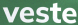
veste